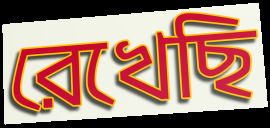
রেখেছি